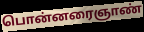
பொன்னரைஞாண்